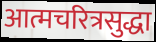
आत्मचरित्रसुद्धा